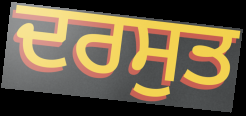
ਦਰਸੁਤ